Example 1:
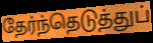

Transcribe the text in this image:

தேர்ந்தெடுத்துப்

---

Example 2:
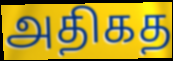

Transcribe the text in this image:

அதிகத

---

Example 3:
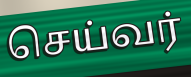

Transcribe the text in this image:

செய்வர்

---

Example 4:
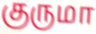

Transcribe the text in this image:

குருமா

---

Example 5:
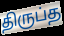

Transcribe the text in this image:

திருப்த